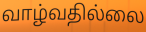
வாழ்வதில்லை